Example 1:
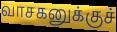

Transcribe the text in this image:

வாசகனுக்குச்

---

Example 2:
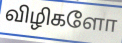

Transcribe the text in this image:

விழிகளோ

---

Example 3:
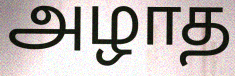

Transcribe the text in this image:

அழாத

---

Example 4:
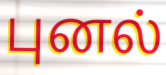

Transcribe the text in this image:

புனல்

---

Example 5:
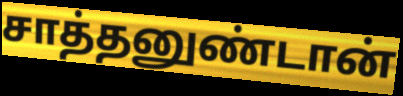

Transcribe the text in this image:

சாத்தனுண்டான்